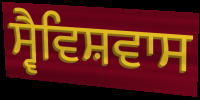
ਸ੍ਵੈਵਿਸ਼ਵਾਸ